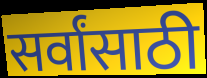
सर्वांसाठी